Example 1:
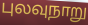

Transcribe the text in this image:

புலவுநாறு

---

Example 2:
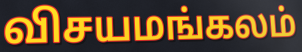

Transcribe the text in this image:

விசயமங்கலம்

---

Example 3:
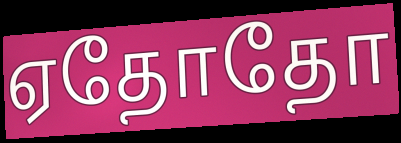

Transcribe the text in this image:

ஏதோதோ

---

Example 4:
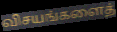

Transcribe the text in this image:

விசயங்களைத்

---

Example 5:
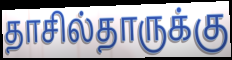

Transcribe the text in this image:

தாசில்தாருக்கு